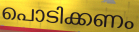
പൊടിക്കണം